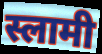
स्लामी